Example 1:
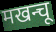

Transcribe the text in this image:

मखन्चू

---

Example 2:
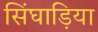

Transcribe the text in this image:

सिंघाड़िया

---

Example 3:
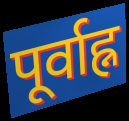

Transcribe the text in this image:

पूर्वाह्न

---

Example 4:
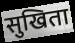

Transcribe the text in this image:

सुखिता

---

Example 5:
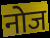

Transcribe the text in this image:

नोज